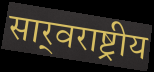
सार्वराष्ट्रीय